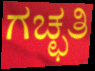
ಗಚ್ಛತಿ